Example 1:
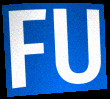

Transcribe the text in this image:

FU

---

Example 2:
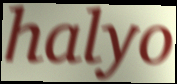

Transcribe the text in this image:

halyo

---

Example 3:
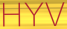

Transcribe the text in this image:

HYV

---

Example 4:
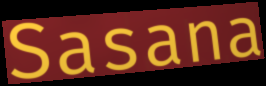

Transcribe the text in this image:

Sasana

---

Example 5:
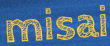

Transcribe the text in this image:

misai